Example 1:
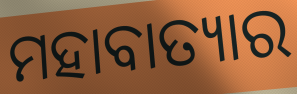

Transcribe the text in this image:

ମହାବାତ୍ୟାର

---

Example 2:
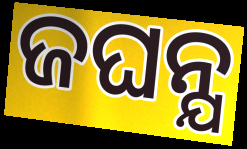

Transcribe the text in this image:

ଜଘନ୍ଯ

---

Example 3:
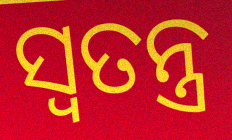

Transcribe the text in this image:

ସ୍ୱତନ୍ତ୍ର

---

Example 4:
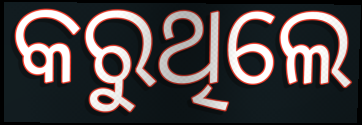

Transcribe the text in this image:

କରୁଥିଲେ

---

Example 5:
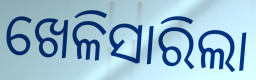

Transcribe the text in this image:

ଖେଳିସାରିଲା